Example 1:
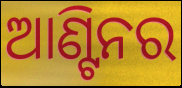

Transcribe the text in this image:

ଆଣ୍ଟିନର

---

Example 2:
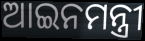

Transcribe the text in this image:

ଆଇନମନ୍ତ୍ରୀ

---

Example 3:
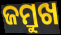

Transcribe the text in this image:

ଜମ୍ରୁଖ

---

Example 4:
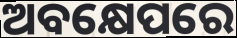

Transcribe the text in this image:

ଅବକ୍ଷେପରେ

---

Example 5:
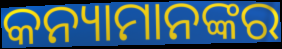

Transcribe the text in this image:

କନ୍ୟାମାନଙ୍କର